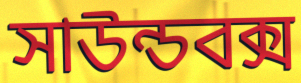
সাউন্ডবক্স